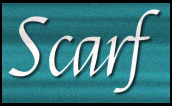
Scarf